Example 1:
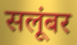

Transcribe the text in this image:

सलूंबर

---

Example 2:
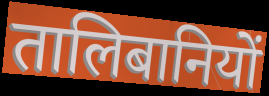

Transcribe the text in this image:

तालिबानियों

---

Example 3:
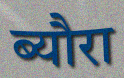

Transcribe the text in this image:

ब्‍यौरा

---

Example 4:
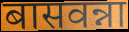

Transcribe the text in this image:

बासवन्ना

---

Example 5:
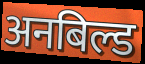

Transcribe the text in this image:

अनबिल्ड